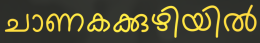
ചാണകക്കുഴിയിൽ